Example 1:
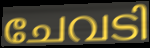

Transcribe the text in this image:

ചേവടി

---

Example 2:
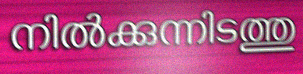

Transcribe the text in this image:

നിൽക്കുന്നിടത്തു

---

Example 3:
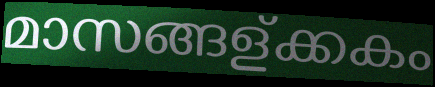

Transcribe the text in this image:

മാസങ്ങള്ക്കകം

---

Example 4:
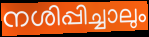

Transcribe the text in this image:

നശിപ്പിച്ചാലും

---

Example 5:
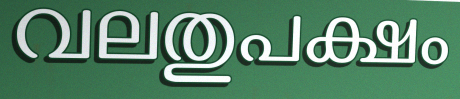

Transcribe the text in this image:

വലതുപക്ഷം